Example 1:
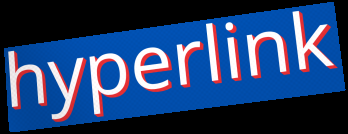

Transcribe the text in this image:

hyperlink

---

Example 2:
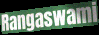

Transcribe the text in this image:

Rangaswami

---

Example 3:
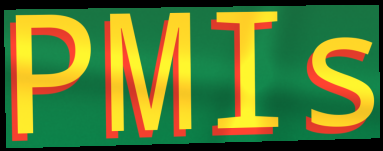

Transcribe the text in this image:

PMIs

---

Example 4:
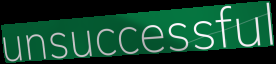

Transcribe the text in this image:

unsuccessful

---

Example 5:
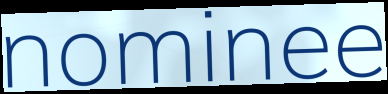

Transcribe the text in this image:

nominee